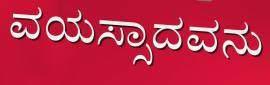
ವಯಸ್ಸಾದವನು